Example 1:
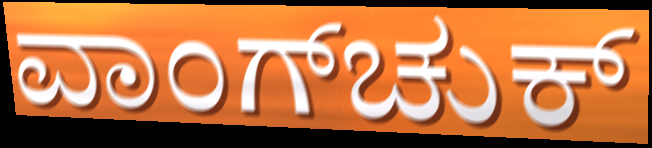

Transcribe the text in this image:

ವಾಂಗ್‌ಚುಕ್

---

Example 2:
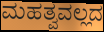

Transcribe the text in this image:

ಮಹತ್ವವಲ್ಲದ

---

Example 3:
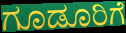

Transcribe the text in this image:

ಗೂಡೂರಿಗೆ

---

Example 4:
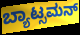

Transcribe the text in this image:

ಬ್ಯಾಟ್ಸಮನ್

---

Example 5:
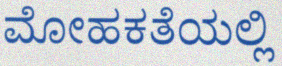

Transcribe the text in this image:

ಮೋಹಕತೆಯಲ್ಲಿ